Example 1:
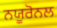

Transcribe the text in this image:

ਨਯੂਰੋਨਲ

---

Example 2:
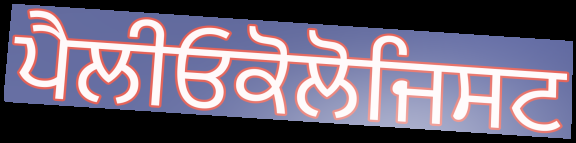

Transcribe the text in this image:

ਪੈਲੀਓਕੋਲੋਜਿਸਟ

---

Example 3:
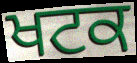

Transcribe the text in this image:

ਖਟਕ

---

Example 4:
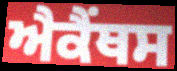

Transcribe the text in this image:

ਐਕੈਂਥਸ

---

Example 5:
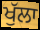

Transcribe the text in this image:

ਖੁੱਲਾ